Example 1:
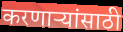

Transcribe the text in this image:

करणाऱ्यांसाठी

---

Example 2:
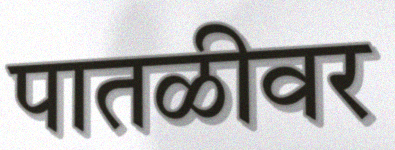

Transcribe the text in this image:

पातळीवर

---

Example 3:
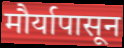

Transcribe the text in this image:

मौर्यापासून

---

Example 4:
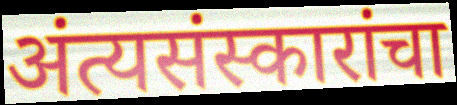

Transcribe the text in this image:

अंत्यसंस्कारांचा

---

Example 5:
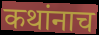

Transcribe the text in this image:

कथांनाच